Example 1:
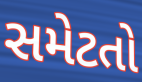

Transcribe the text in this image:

સમેટતો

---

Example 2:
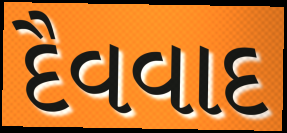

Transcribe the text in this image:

દૈવવાદ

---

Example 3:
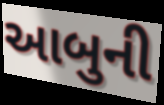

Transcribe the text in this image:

આબુની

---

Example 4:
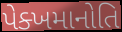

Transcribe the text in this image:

પેક્ખમાનોતિ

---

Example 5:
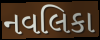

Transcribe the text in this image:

નવલિકા